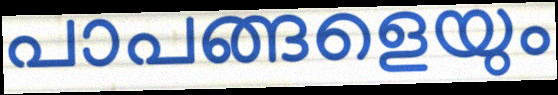
പാപങ്ങളെയും